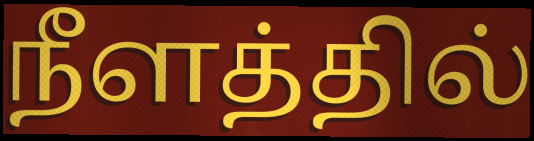
நீளத்தில்